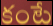
కంటే